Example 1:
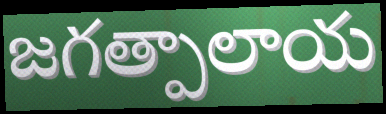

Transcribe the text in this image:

జగత్పాలాయ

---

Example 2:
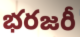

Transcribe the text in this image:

భరజరీ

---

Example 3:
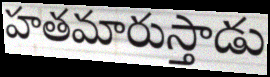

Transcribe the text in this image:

హతమారుస్తాడు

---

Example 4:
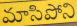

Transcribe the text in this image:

మాసిపోని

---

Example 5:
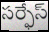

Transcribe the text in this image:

సర్ఫేస్